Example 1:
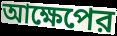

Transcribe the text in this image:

আক্ষেপের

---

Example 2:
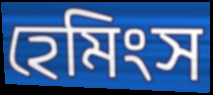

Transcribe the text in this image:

হেমিংস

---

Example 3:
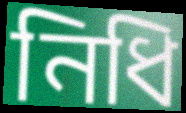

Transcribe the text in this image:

নিধি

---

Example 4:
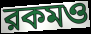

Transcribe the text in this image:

রকমও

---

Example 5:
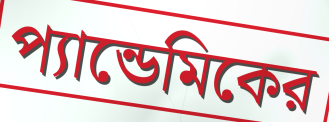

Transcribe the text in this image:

প্যান্ডেমিকের